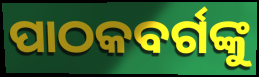
ପାଠକବର୍ଗଙ୍କୁ